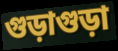
গুড়াগুড়া